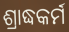
ଶ୍ରାଦ୍ଧକର୍ମ